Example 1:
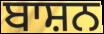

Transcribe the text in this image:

ਬਾਸ਼ਨ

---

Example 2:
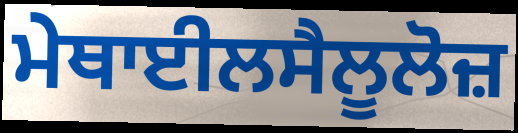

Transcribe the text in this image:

ਮੇਥਾਈਲਸੈਲੂਲੋਜ਼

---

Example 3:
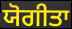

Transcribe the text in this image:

ਯੋਗੀਤਾ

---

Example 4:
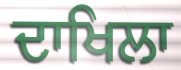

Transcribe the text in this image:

ਦਾਖਿਲਾ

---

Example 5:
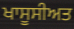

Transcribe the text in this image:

ਖਾਸੂਸੀਅਤ